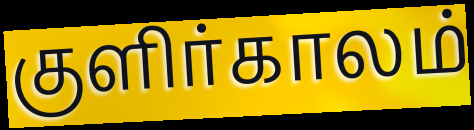
குளிர்காலம்